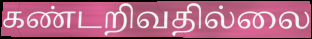
கண்டறிவதில்லை